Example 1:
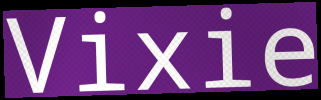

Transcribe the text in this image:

Vixie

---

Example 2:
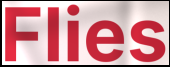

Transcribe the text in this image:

Flies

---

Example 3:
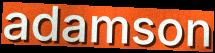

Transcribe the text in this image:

adamson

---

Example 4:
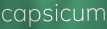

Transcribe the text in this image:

capsicum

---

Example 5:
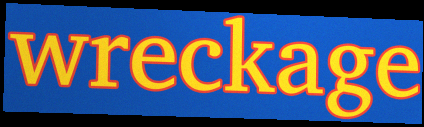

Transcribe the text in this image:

wreckage